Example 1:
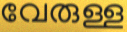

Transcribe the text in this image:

വേരുള്ള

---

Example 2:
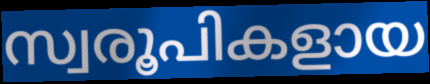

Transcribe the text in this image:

സ്വരൂപികളായ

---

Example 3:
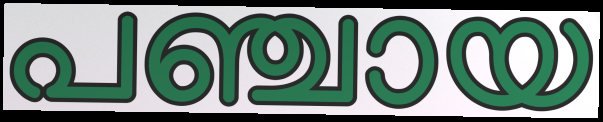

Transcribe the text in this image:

പഞ്ചായ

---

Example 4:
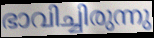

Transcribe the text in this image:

ഭാവിച്ചിരുന്നു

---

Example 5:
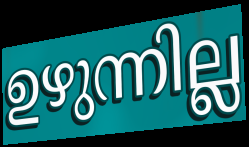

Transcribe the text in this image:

ഉഴുന്നില്ല